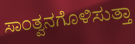
ಸಾಂತ್ವನಗೊಳಿಸುತ್ತಾ